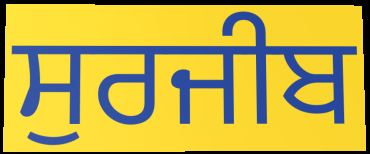
ਸੁਰਜੀਬ